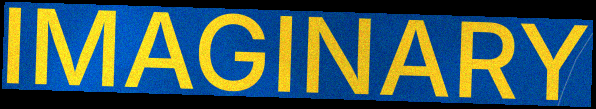
IMAGINARY